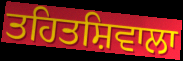
ਤਹਿਤਸ਼ਿਵਾਲਾ